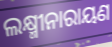
ଲକ୍ଷ୍ମୀନାରାୟଣ